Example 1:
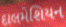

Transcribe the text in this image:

દાલમેશિયન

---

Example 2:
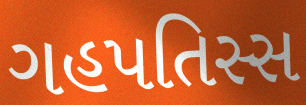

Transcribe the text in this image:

ગહપતિસ્સ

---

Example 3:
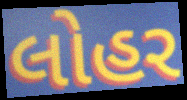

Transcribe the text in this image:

લોહર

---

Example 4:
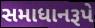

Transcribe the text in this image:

સમાધાનરૂપે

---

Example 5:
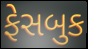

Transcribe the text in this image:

ફેસબુક